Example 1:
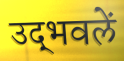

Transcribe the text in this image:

उद्‍भवलें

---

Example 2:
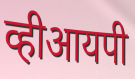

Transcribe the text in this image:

व्हीआयपी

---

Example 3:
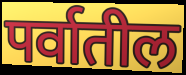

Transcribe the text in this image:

पर्वातील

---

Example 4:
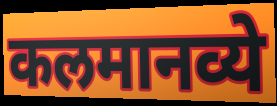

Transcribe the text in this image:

कलमानव्ये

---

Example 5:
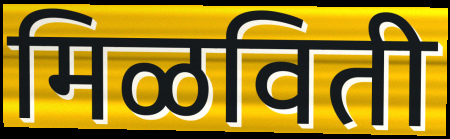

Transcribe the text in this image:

मिळविती